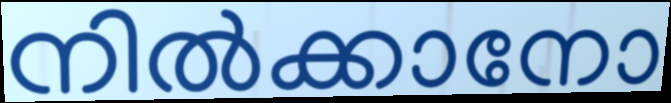
നിൽക്കാനോ